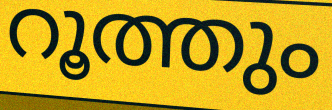
റൂത്തും